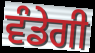
ਵੰਡੇਗੀ